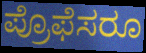
ಪ್ರೊಫೆಸರೂ